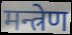
मन्त्रेण